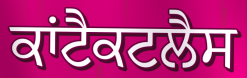
ਕਾਂਟੈਕਟਲੈਸ